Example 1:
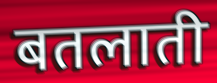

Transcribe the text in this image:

बतलाती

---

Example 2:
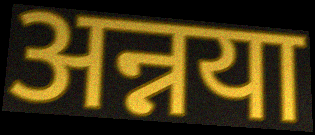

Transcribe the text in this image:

अन्नया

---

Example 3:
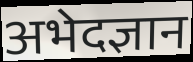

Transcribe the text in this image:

अभेदज्ञान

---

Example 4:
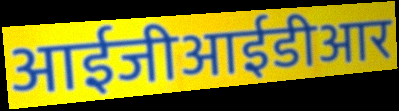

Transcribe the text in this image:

आईजीआईडीआर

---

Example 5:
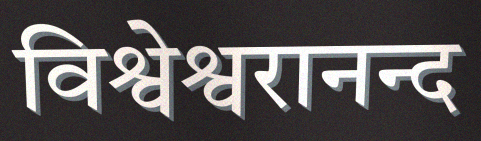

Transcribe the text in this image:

विश्वेश्वरानन्द